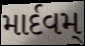
માર્દવમ્